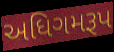
અધિગમરૂપ